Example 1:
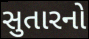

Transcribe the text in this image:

સુતારનો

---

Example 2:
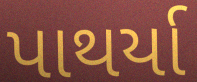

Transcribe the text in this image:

પાથર્યા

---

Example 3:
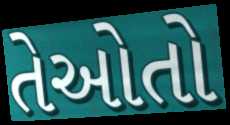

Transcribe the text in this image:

તેઓતો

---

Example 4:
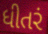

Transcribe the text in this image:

ધીતરં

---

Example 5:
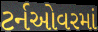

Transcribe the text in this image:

ટર્નઓવરમાં